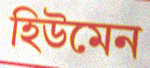
হিউমেন